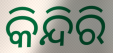
କିନ୍ଦିରି